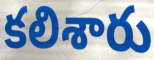
కలిశారు